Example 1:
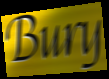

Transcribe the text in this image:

Bury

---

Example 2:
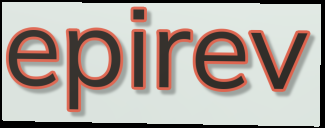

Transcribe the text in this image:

epirev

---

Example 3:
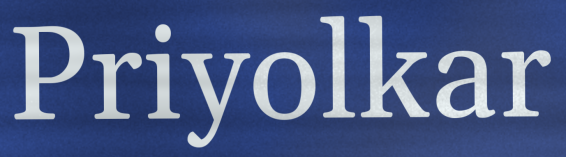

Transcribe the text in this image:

Priyolkar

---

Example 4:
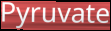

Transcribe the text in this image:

Pyruvate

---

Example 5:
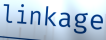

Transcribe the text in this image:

linkage